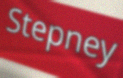
Stepney